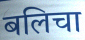
बलिचा